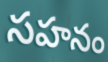
సహనం